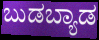
ಬುಡಬ್ಯಾಡ